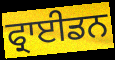
ਫ੍ਰਾਈਡਨ